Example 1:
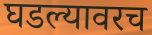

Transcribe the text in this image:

घडल्यावरच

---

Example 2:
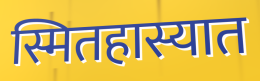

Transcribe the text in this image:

स्मितहास्यात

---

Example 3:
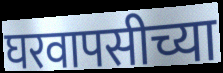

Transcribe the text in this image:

घरवापसीच्या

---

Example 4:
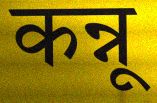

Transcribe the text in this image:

कन्नू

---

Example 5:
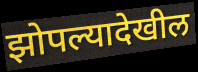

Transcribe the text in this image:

झोपल्यादेखील